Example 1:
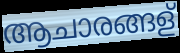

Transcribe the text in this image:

ആചാരങ്ങള്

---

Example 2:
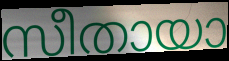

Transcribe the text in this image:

സീതായാ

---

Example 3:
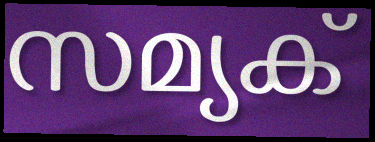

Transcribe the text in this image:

സമ്യക്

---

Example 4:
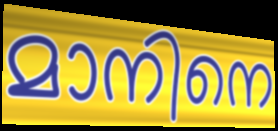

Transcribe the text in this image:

മാനിനെ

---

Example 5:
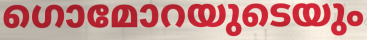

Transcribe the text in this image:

ഗൊമോറയുടെയും